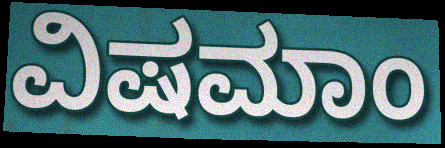
ವಿಷಮಾಂ